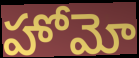
హోమో